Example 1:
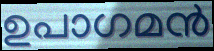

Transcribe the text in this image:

ഉപാഗമൻ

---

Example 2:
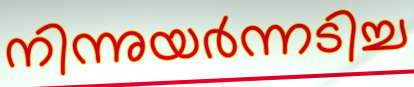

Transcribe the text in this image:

നിന്നുയർന്നടിച്ച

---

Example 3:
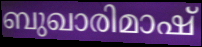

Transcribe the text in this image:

ബുഖാരിമാഷ്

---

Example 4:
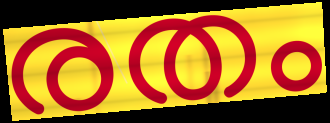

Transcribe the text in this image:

രതം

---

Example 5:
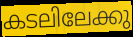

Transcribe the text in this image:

കടലിലേക്കു